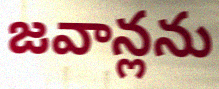
జవాన్లను